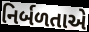
નિર્બળતાએ